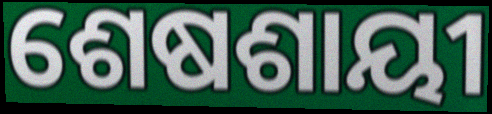
ଶେଷଶାୟୀ